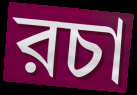
রচা